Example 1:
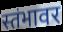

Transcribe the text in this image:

स्तंभावर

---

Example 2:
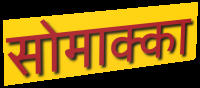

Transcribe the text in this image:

सोमाक्का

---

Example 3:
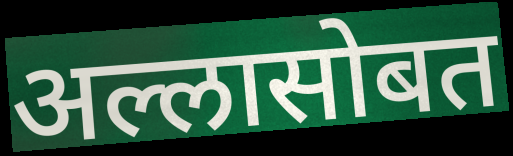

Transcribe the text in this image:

अल्लासोबत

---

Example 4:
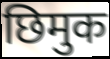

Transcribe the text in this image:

छिमुक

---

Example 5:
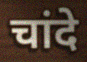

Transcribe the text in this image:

चांदे